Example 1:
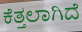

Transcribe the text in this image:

ಕೆತ್ತಲಾಗಿದೆ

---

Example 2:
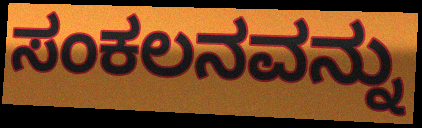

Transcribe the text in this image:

ಸಂಕಲನವನ್ನು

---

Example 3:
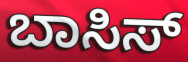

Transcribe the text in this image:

ಬಾಸಿಸ್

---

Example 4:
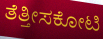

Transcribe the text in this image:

ತೆತ್ತೀಸಕೋಟಿ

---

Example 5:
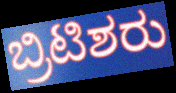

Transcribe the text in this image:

ಬ್ರಿಟಿಶರು